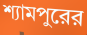
শ্যামপুরের